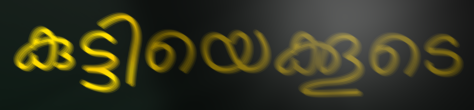
കുട്ടിയെക്കൂടെ